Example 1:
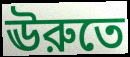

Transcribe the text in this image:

ঊরুতে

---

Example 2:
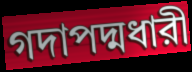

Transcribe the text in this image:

গদাপদ্মধারী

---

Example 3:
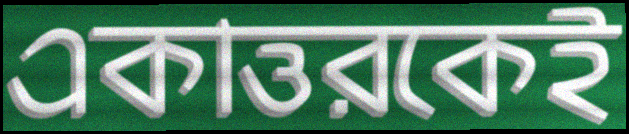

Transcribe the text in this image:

একাত্তরকেই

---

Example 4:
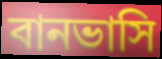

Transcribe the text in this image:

বানভাসি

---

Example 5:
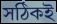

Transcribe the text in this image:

সঠিকই